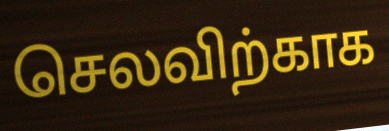
செலவிற்காக